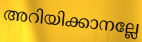
അറിയിക്കാനല്ലേ